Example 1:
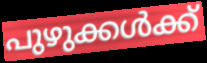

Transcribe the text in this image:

പുഴുക്കൾക്ക്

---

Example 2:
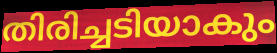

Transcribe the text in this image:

തിരിച്ചടിയാകും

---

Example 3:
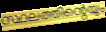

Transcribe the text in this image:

സ്ഥലത്തിന്റെയും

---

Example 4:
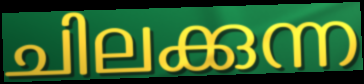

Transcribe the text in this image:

ചിലക്കുന്ന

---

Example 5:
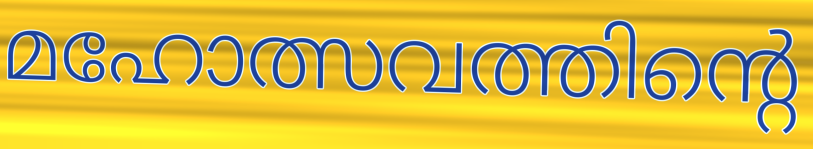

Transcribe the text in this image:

മഹോത്സവത്തിന്റെ